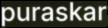
puraskar